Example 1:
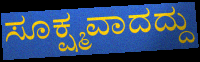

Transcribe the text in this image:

ಸೂಕ್ಷ್ಮವಾದದ್ದು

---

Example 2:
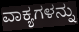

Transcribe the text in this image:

ವಾಕ್ಯಗಳನ್ನು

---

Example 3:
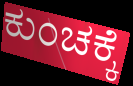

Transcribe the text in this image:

ಕುಂಚಕ್ಕೆ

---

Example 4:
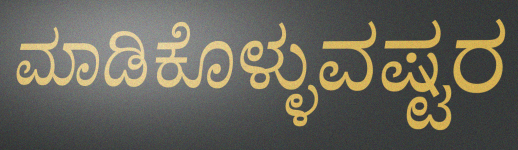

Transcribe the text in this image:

ಮಾಡಿಕೊಳ್ಳುವಷ್ಟರ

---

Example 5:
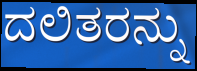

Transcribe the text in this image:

ದಲಿತರನ್ನು